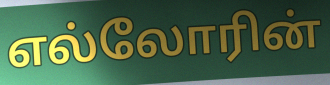
எல்லோரின்